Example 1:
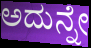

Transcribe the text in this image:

ಅದುನ್ನೇ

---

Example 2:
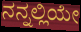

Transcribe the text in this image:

ನನ್ನಲ್ಲಿಯೇ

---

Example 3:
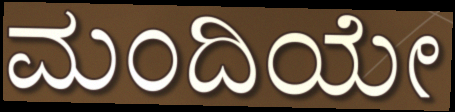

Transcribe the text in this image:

ಮಂದಿಯೇ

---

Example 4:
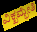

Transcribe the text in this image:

ವಿಕ್ಖಮ್ಭೇತಿ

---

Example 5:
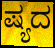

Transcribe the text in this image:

ಷ್ಯದ